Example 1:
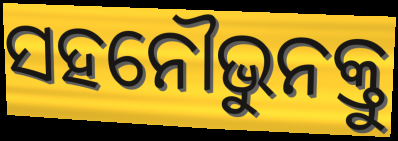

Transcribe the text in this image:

ସହନୌଭୁନକ୍ତୁ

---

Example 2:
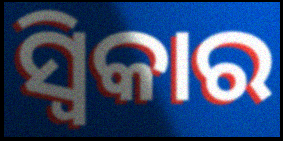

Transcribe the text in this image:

ସ୍ୱିକାର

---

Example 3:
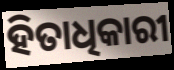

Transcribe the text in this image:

ହିତାଧିକାରୀ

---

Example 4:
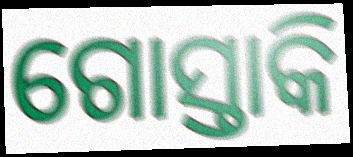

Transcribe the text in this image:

ଗୋସ୍ତାକି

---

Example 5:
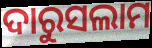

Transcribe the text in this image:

ଦାରୁସଲାମ